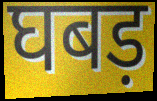
घबड़